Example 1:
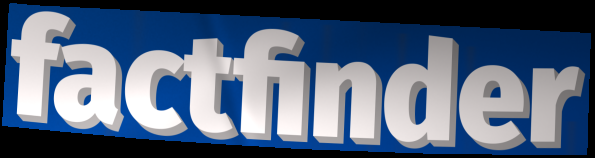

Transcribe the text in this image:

factfinder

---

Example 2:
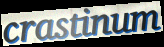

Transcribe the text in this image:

crastinum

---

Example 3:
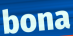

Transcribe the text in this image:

bona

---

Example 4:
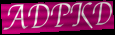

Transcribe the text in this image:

ADPKD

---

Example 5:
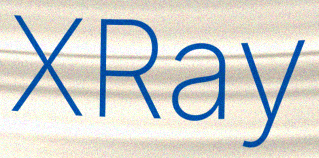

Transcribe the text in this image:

XRay